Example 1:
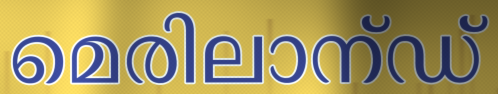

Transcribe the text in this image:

മെരിലാന്ഡ്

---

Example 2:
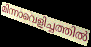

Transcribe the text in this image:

മിന്നാവെളിച്ചത്തിൽ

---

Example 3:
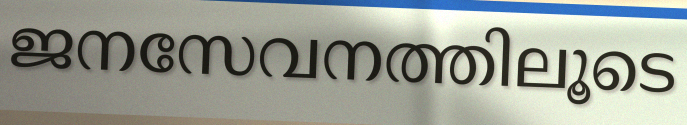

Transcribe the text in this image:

ജനസേവനത്തിലൂടെ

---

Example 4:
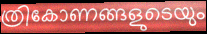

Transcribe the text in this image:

ത്രികോണങ്ങളുടെയും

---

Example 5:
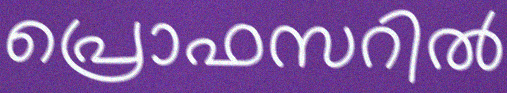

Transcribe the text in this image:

പ്രൊഫസറിൽ